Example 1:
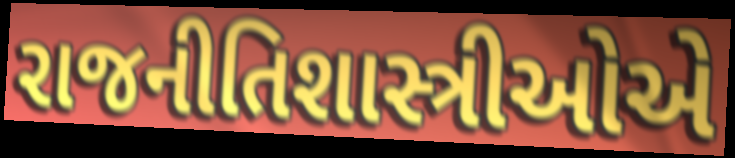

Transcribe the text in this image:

રાજનીતિશાસ્ત્રીઓએ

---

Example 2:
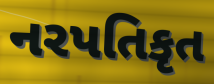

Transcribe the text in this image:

નરપતિકૃત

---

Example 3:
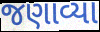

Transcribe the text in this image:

જણાવ્યા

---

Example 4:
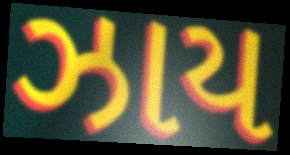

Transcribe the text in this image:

ઝાય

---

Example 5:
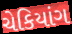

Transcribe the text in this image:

ચેકિયાંગ